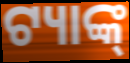
ଟ୍ୟାଙ୍କ୍